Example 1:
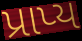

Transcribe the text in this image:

પ્રાપ્ય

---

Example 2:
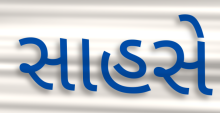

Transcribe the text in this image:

સાહસે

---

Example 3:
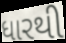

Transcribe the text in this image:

ધારથી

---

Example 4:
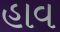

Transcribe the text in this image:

હાવ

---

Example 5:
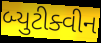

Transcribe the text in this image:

બ્યુટીક્વીન